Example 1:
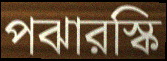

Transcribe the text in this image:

পঝারস্কি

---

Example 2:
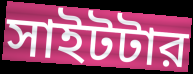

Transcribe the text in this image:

সাইটটার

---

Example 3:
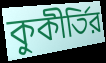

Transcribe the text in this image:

কুকীর্তির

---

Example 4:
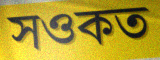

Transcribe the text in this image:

সওকত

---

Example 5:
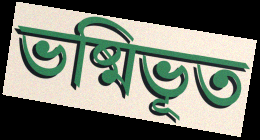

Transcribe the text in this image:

ভষ্মিভূত